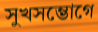
সুখসম্ভোগে